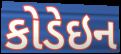
કોડેઇન